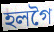
হলগৈ